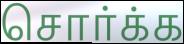
சொர்க்க